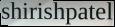
shirishpatel